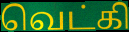
வெட்கி